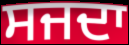
ਸਜਦਾ